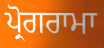
ਪ੍ਰੋਗਰਾਮਾ